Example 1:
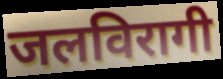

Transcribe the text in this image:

जलविरागी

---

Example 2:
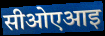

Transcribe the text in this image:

सीओएआइ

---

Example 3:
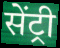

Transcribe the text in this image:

सेंट्री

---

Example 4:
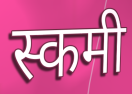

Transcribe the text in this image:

स्कमी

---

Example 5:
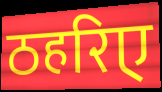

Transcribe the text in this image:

ठहरिए